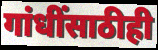
गांधींसाठीही